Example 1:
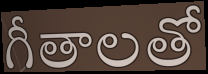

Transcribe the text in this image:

గీతాలతో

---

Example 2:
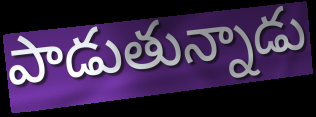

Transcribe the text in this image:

పాడుతున్నాడు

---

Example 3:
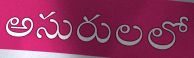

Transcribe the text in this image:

అసురులలో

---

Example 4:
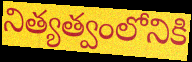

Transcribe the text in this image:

నిత్యత్వంలోనికి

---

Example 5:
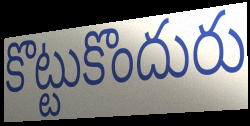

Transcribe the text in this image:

కొట్టుకొందురు